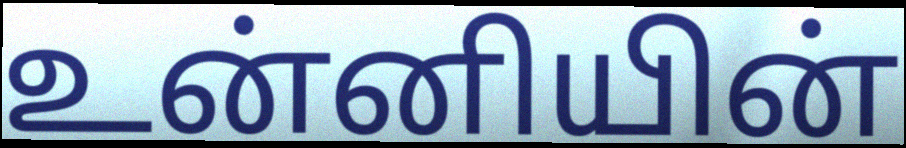
உன்னியின்